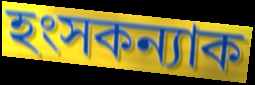
হংসকন্যাক